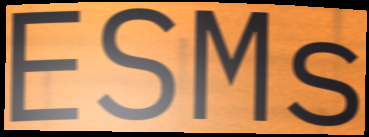
ESMs